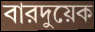
বারদুয়েক